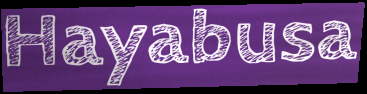
Hayabusa